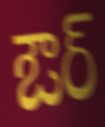
ఔర్